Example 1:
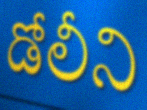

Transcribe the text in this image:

డోలీని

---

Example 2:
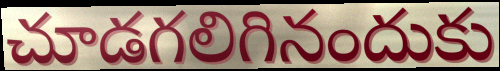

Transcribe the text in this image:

చూడగలిగినందుకు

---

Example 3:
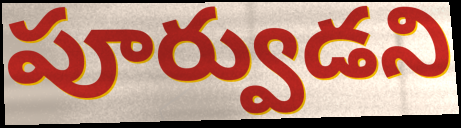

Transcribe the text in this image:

పూర్వుడని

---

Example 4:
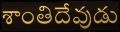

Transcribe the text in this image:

శాంతిదేవుడు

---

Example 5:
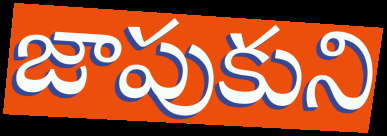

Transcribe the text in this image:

జాపుకుని